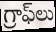
గ్రాఫ్‌లు